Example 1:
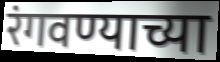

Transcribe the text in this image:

रंगवण्याच्या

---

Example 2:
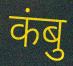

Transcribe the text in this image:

कंबु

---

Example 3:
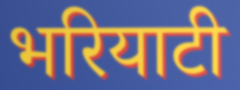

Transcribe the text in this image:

भरियाटी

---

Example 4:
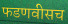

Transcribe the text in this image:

फडणवीसच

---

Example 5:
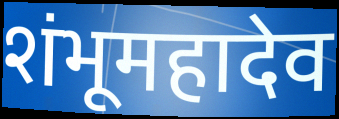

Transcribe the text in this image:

शंभूमहादेव